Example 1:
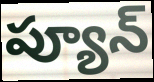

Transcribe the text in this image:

ప్యూన్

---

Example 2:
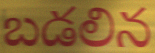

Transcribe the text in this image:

బడలిన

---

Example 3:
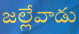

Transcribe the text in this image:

జల్లేవాడు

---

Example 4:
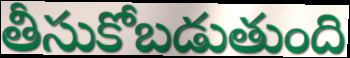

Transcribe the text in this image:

తీసుకోబడుతుంది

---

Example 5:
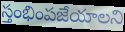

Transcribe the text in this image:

స్తంభింపజేయాలని